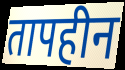
तापहीन